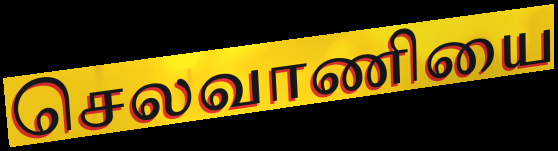
செலவாணியை